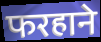
फरहाने